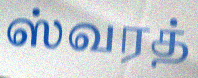
ஸ்வரத்